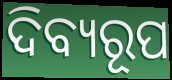
ଦିବ୍ୟରୂପ